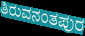
ತಿರುವನಂತಪುರ